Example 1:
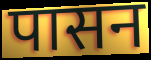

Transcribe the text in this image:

पासन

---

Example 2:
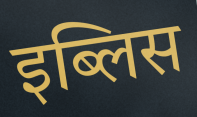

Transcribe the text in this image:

इब्लिस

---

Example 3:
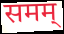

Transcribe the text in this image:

समम्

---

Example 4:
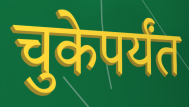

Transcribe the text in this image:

चुकेपर्यंत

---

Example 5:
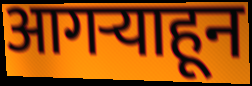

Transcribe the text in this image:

आगऱ्याहून